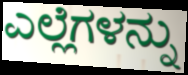
ಎಲ್ಲೆಗಳನ್ನು